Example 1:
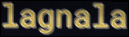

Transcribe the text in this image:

lagnala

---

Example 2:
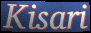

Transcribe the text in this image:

Kisari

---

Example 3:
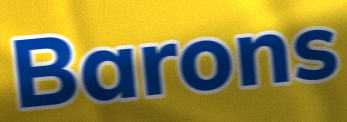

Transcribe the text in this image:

Barons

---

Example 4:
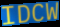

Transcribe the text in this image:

IDCW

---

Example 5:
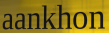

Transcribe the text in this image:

aankhon